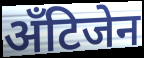
अँटिजेन